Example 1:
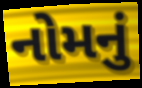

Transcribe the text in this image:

નોમનું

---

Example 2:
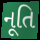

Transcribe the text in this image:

નૂતિ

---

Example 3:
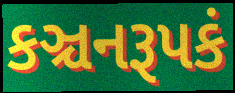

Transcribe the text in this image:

કઞ્ચનરૂપકં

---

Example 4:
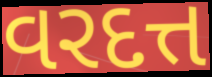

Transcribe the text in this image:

વરદત્ત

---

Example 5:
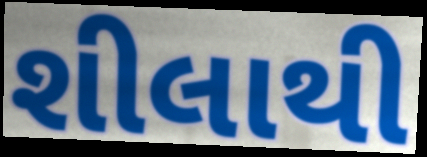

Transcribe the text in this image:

શીલાથી